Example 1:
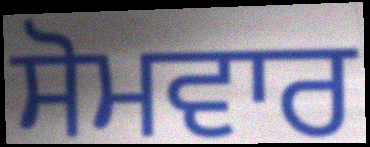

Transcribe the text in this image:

ਸੋਮਵਾਰ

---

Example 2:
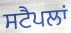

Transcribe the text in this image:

ਸਟੈਪਲਾਂ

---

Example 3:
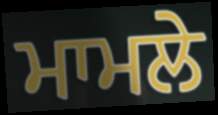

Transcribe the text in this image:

ਮਾਮਲੇ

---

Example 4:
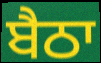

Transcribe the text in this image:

ਬੈਠਾ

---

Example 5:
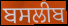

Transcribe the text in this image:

ਬਸਲੀਬ